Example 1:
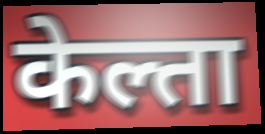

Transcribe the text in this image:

केल्ता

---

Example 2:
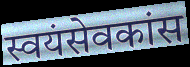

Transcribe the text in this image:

स्वयंसेवकांस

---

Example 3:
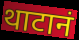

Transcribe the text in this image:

थाटानं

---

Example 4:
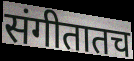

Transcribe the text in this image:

संगीतातच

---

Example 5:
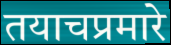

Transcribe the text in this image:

तयाचप्रमारे